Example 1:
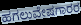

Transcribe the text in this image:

ಹಗಲುವೇಷಗಾರರ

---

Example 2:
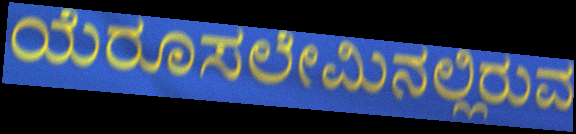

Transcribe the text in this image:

ಯೆರೂಸಲೇಮಿನಲ್ಲಿರುವ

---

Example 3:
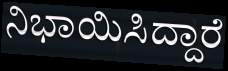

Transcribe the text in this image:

ನಿಭಾಯಿಸಿದ್ದಾರೆ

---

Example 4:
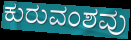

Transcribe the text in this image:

ಕುರುವಂಶವು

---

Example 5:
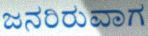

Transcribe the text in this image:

ಜನರಿರುವಾಗ